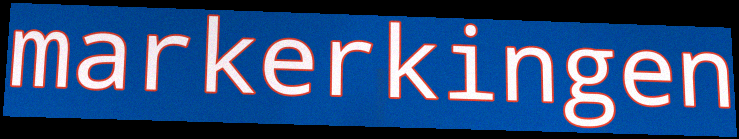
markerkingen